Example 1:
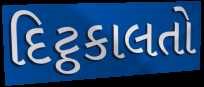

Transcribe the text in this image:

દિટ્ઠકાલતો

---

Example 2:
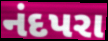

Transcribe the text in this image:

નંદપરા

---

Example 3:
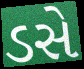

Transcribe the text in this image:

ડસે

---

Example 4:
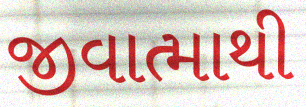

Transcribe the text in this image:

જીવાત્માથી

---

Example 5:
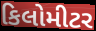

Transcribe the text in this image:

કિલોમીટર